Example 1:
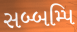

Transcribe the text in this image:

સબ્બમ્પિ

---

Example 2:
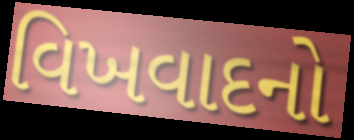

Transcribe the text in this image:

વિખવાદનો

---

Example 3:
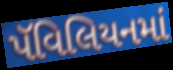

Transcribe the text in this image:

પૅવિલિયનમાં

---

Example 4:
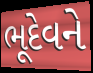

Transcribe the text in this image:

ભૂદેવને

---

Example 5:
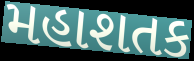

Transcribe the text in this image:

મહાશતક